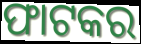
ଫାଟକର